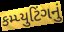
કમ્પ્યુટિંગનું